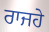
ਰਾਜਹੇ